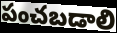
పంచబడాలి